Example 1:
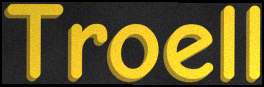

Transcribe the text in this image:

Troell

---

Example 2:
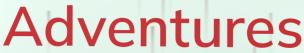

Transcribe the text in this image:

Adventures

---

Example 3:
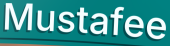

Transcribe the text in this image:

Mustafee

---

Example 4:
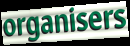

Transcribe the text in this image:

organisers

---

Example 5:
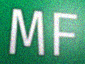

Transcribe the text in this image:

MF